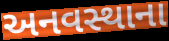
અનવસ્થાના